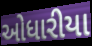
ઓધારીયા